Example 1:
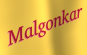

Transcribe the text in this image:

Malgonkar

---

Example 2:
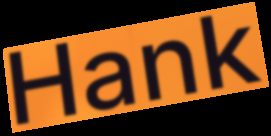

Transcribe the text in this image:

Hank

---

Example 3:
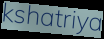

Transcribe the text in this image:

kshatriya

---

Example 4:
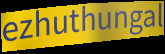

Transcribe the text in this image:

ezhuthungal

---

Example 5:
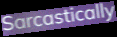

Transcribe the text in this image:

Sarcastically